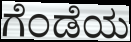
ಗೆಂಡೆಯ